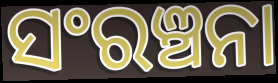
ସଂରଞ୍ଚନା